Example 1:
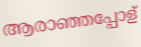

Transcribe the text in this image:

ആരാഞ്ഞപ്പോള്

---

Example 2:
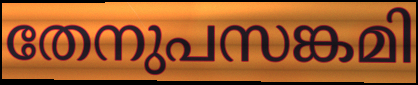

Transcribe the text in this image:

തേനുപസങ്കമി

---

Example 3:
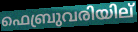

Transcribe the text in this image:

ഫെബ്രുവരിയില്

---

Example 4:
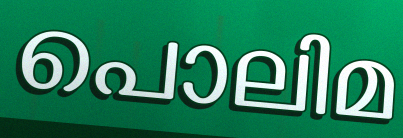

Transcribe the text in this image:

പൊലിമ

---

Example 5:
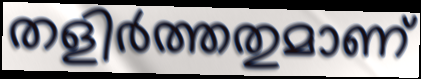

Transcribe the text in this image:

തളിർത്തതുമാണ്